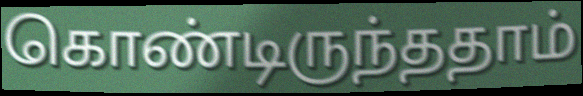
கொண்டிருந்ததாம்